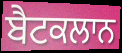
ਬੈਟਕਲਾਨ